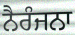
ਨੈਰੰਜਨਾ